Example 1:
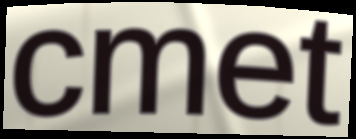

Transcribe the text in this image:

cmet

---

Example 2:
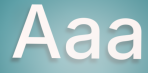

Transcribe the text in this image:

Aaa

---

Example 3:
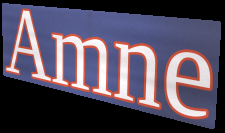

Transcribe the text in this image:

Amne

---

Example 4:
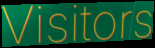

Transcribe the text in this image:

Visitors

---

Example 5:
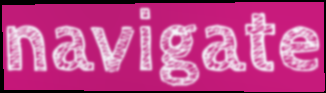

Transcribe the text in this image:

navigate